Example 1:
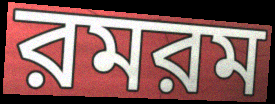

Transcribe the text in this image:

রমরম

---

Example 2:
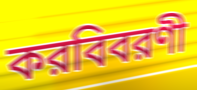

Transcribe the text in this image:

করবিবরণী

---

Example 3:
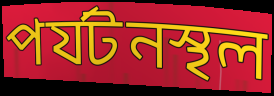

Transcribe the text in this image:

পর্যটনস্থল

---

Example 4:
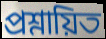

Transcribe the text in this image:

প্রশ্নায়িত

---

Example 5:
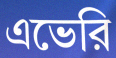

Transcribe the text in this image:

এভেরি